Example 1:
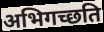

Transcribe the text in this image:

अभिगच्छति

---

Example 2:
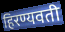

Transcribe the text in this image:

हिरण्यवती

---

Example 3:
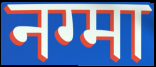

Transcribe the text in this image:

नग्मा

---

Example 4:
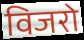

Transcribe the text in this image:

विजरो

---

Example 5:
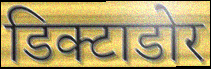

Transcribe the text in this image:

डिक्टाडोर